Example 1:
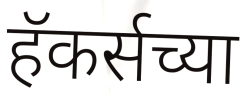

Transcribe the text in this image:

हॅकर्सच्या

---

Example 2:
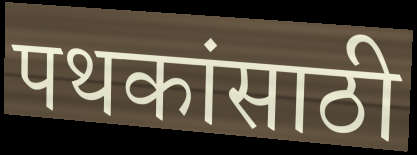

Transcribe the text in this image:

पथकांसाठी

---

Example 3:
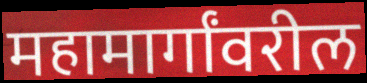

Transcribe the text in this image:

महामार्गांवरील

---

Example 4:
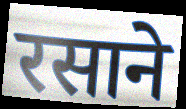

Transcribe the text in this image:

रसाने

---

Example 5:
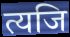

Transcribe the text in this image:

त्यजि